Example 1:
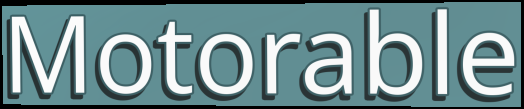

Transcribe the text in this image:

Motorable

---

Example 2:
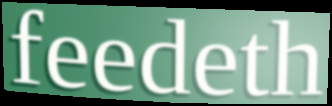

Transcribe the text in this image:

feedeth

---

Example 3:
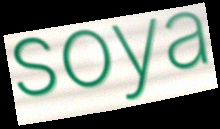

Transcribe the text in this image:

soya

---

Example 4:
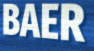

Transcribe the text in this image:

BAER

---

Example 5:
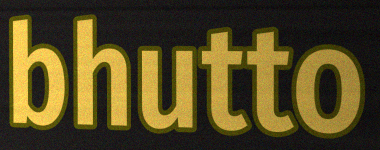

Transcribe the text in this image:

bhutto